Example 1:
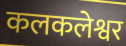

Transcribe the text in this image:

कलकलेश्वर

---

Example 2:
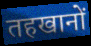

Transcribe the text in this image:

तहखानों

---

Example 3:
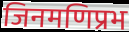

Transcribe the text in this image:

जिनमणिप्रभ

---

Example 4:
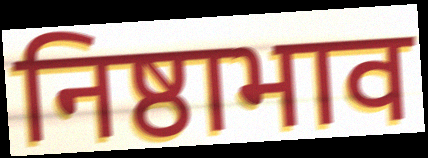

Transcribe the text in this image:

निष्ठाभाव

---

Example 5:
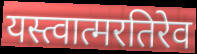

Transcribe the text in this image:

यस्त्वात्मरतिरेव